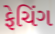
ફેચિંગ